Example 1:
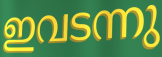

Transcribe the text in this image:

ഇവടന്നു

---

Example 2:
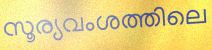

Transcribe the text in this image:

സൂര്യവംശത്തിലെ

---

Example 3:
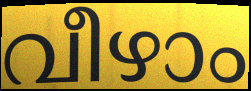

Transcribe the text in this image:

വീഴാം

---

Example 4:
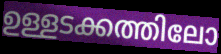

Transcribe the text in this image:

ഉള്ളടക്കത്തിലോ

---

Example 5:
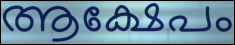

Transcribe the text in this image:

ആക്ഷേപം